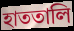
হাততালি